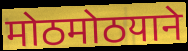
मोठमोठयाने